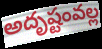
అదృష్టంవల్ల